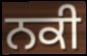
ਨਕੀ